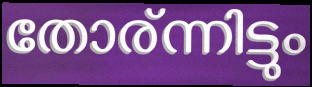
തോര്ന്നിട്ടും